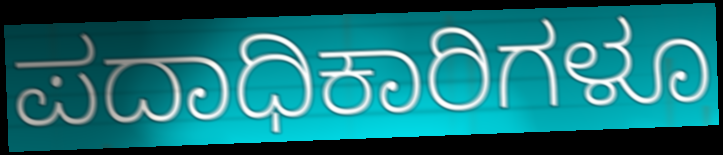
ಪದಾಧಿಕಾರಿಗಳೂ